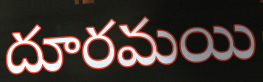
దూరమయి